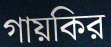
গায়কির